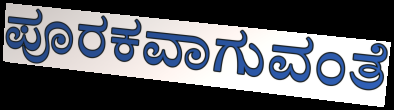
ಪೂರಕವಾಗುವಂತೆ